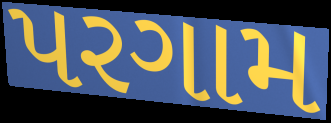
પરગામ